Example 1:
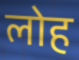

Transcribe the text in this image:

लोह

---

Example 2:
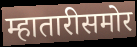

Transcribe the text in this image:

म्हातारीसमोर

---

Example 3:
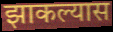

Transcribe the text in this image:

झाकल्यास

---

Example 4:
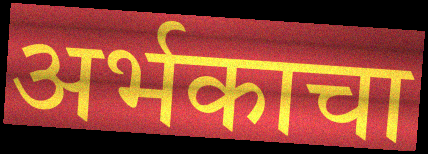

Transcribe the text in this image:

अर्भकाचा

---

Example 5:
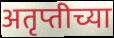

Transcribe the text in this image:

अतृप्तीच्या